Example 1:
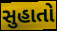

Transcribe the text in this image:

સુહાતો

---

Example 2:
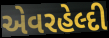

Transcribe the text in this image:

એવરહેલ્દી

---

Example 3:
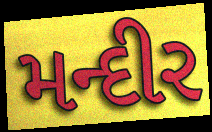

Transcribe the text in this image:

મન્દીર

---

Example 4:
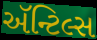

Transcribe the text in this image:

ઍન્ટિલ્સ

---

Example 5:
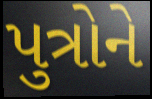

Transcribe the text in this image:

પુત્રોને